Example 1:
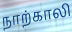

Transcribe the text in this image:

நாற்காலி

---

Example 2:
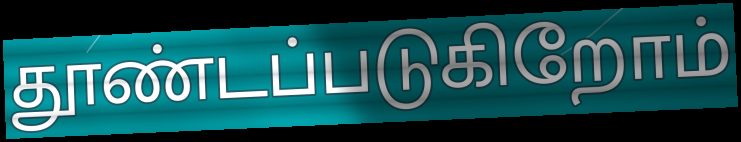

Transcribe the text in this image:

தூண்டப்படுகிறோம்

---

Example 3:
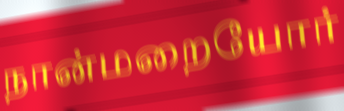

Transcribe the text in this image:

நான்மறையோர்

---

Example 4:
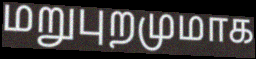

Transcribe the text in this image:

மறுபுறமுமாக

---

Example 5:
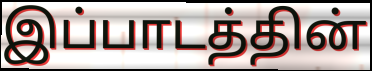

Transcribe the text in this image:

இப்பாடத்தின்